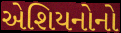
એશિયનોનો